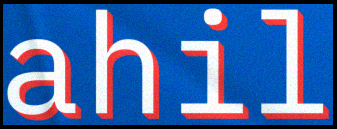
ahil